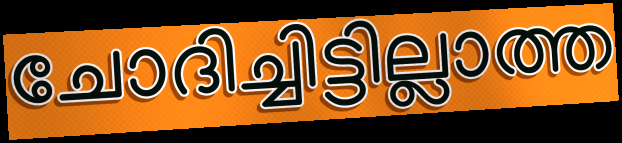
ചോദിച്ചിട്ടില്ലാത്ത